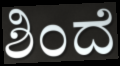
ಶಿಂದೆ